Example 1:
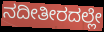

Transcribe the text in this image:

ನದೀತೀರದಲ್ಲೇ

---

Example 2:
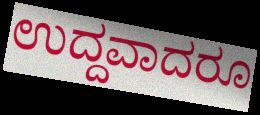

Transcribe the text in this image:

ಉದ್ದವಾದರೂ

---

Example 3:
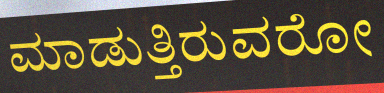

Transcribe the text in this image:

ಮಾಡುತ್ತಿರುವರೋ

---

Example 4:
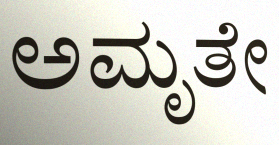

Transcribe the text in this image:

ಅಮೃತೇ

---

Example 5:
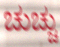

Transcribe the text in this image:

ಚುಚ್ಚು